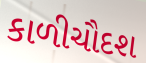
કાળીચૌદશ